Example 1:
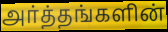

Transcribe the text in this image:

அர்த்தங்களின்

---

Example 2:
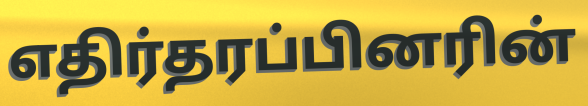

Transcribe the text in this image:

எதிர்தரப்பினரின்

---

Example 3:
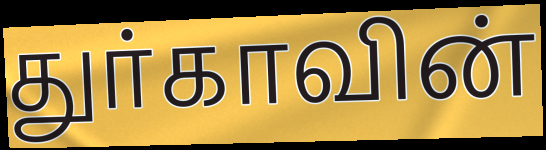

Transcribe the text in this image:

துர்காவின்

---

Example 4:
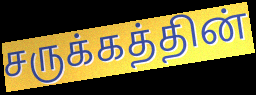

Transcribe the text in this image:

சருக்கத்தின்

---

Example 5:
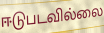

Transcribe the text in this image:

ஈடுபடவில்லை